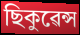
ছিকুৱেন্স